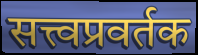
सत्त्वप्रवर्तक